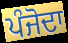
ਪੰਜੋਦਾ